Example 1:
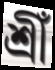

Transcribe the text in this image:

শ্ৰীঁ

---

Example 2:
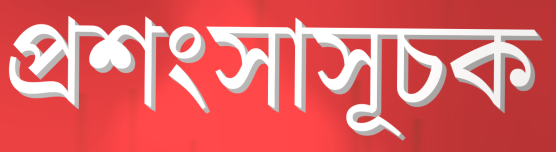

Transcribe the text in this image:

প্ৰশংসাসূচক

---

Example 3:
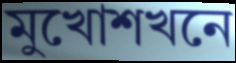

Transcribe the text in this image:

মুখোশখনে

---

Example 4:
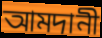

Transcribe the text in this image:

আমদানী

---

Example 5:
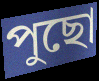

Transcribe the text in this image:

পুছো